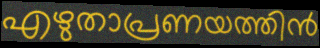
എഴുതാപ്രണയത്തിൻ